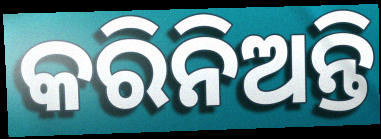
କରିନିଅନ୍ତି